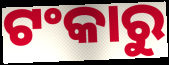
ଟଂକାରୁ